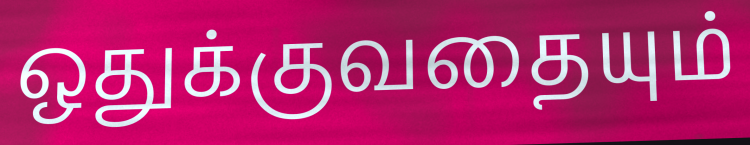
ஒதுக்குவதையும்